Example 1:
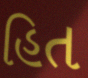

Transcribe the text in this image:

હિત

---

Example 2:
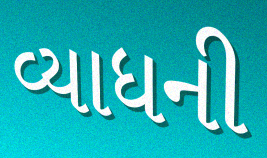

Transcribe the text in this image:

વ્યાધની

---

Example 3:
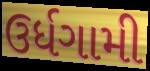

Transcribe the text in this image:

ઉર્ધગામી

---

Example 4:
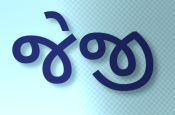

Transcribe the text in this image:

જેજી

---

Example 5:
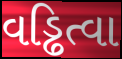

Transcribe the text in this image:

વડ્ઢિત્વા